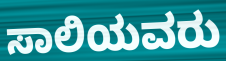
ಸಾಲಿಯವರು